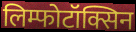
लिम्फोटॉक्सिन